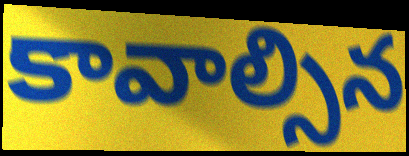
కావాల్సిన